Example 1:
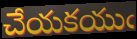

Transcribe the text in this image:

చేయకయుఁ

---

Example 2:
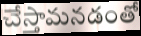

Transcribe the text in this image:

చేస్తామనడంతో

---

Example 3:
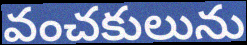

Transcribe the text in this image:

వంచకులును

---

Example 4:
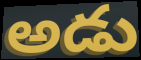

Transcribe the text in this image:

అడు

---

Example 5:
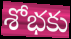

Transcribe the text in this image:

శోభకు